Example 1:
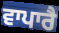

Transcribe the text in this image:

ਵਾਪਾਰੈ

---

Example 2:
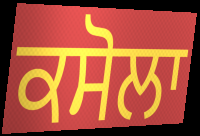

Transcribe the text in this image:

ਕਸੋਲਾ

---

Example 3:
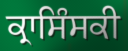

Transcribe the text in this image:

ਕ੍ਰਾਸਿੰਸਕੀ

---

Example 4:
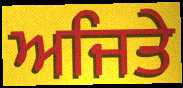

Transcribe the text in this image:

ਅਜਿਤੇ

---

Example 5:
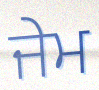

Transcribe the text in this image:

ਜੇਮ